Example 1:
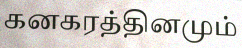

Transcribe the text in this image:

கனகரத்தினமும்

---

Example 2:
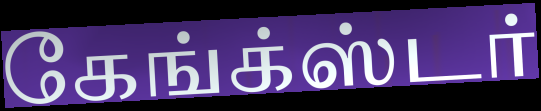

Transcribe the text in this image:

கேங்க்ஸ்டர்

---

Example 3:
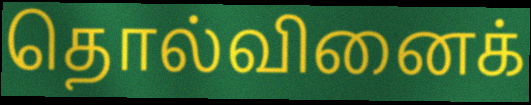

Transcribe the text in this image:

தொல்வினைக்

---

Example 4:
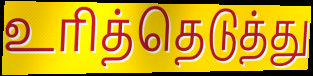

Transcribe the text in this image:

உரித்தெடுத்து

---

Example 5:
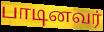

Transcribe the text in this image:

பாடினவர்